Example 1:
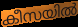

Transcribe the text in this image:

കീസയിൽ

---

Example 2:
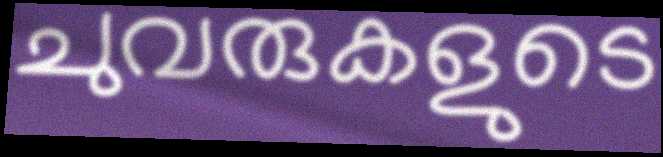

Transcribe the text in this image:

ചുവരുകളുടെ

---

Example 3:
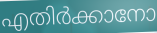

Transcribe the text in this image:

എതിർക്കാനോ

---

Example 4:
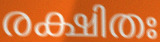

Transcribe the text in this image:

രക്ഷിതഃ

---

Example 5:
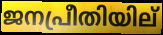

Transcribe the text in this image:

ജനപ്രീതിയില്